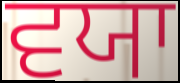
ਵਯਾ